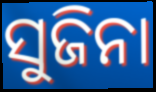
ସୁଜିନା